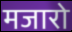
मजारो